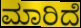
ಮಾರಿದೆ